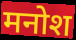
मनोश